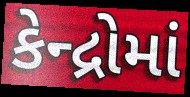
કેન્દ્રોમાં